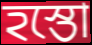
হস্তো